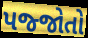
પજ્જોતો